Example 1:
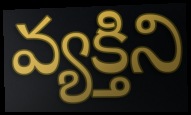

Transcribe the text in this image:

వ్యక్తిని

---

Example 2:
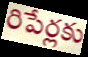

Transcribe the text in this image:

రిపేర్లకు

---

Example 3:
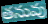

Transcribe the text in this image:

తనువు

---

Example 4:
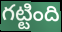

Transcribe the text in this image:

గట్టింది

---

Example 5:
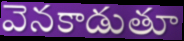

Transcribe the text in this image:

వెనకాడుతూ